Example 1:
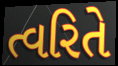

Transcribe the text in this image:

ત્વરિતે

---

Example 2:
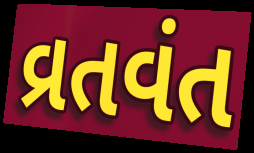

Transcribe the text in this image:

વ્રતવંત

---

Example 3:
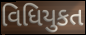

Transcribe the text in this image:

વિધિયુકત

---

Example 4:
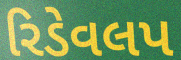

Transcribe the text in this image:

રિડેવલપ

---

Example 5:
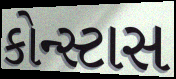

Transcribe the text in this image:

કોન્સ્ટાસ